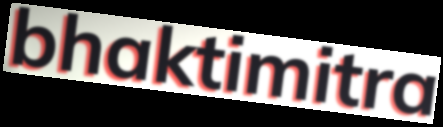
bhaktimitra